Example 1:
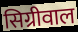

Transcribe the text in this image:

सिग्रीवाल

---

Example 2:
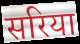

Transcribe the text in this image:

सरिया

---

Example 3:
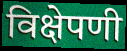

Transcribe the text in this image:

विक्षेपणी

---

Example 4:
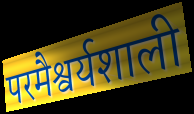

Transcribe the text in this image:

परमैश्वर्यशाली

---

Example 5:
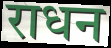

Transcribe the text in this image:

राधन